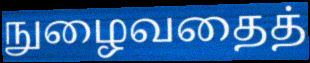
நுழைவதைத்